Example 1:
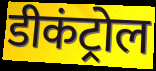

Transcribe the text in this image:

डीकंट्रोल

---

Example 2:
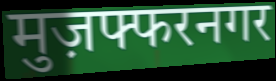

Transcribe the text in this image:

मुज़फ्फरनगर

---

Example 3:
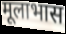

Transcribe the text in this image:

मूलाभास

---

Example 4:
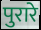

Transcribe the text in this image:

पुरारे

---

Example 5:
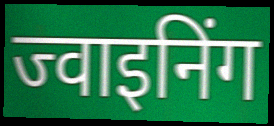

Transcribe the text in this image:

ज्वाइनिंग